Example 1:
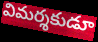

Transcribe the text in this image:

విమర్శకుడూ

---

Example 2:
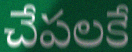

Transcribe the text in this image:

చేపలకే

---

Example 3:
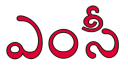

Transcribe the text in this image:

ఎంసీ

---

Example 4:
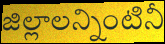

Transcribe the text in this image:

జిల్లాలన్నింటినీ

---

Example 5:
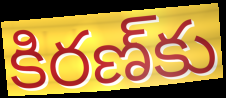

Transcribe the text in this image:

కిరణ్‌కు